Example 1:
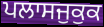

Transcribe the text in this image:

ਪਲਾਸਜੁਕੁਕ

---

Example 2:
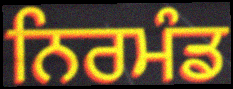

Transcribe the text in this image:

ਨਿਰਮੰਡ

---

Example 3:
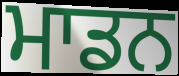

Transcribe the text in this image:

ਮਾਡਨ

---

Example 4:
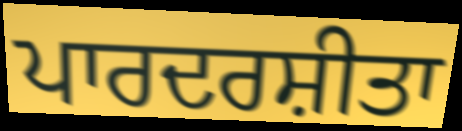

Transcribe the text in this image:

ਪਾਰਦਰਸ਼ੀਤਾ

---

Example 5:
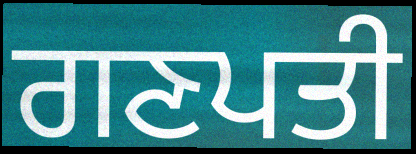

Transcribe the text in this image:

ਗਣਪਤੀ